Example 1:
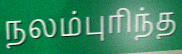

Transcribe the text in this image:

நலம்புரிந்த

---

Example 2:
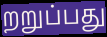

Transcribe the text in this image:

றறுப்பது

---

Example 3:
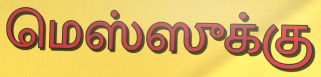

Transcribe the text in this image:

மெஸ்ஸுக்கு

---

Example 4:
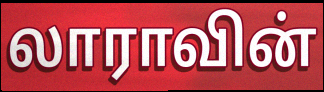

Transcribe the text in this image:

லாராவின்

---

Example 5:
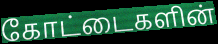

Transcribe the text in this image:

கோட்டைகளின்